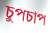
চুপচাপ